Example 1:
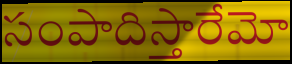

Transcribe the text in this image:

సంపాదిస్తారేమో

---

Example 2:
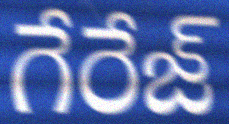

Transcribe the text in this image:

గేరేజ్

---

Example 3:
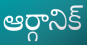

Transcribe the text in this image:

ఆర్గానిక్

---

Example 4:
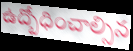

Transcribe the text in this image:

ఉద్బోధించాల్సిన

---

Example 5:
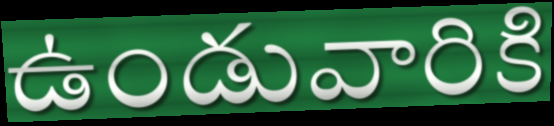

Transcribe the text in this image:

ఉండువారికి